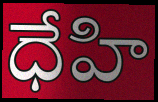
ధేహి